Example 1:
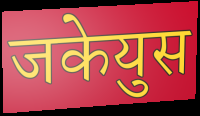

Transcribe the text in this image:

जकेयुस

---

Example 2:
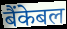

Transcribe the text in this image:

बैंकेबल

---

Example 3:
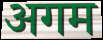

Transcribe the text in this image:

अगम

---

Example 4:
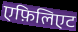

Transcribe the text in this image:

एफ़िलिएट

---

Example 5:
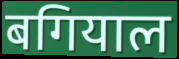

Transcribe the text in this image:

बगियाल